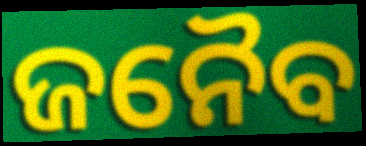
ଜନୈବ